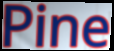
Pine